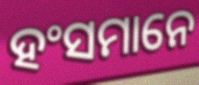
ହଂସମାନେ